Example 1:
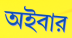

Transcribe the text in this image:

অইবার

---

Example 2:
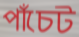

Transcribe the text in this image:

পাঁচেট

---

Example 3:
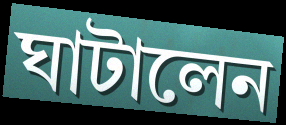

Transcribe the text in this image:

ঘাটালেন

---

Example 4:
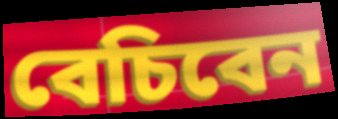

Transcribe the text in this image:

বেচিবেন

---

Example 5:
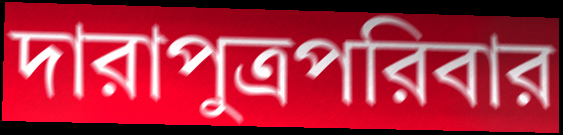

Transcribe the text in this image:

দারাপুত্রপরিবার